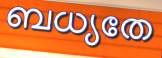
ബധ്യതേ